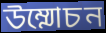
উম্মোচন